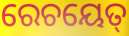
ରେଚୟେତ୍